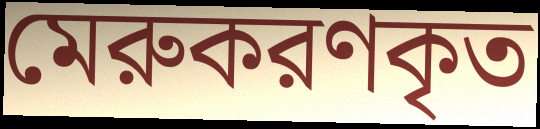
মেরুকরণকৃত